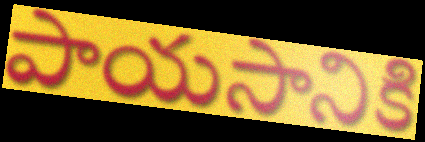
పాయసానికి